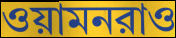
ওয়ামনরাও